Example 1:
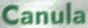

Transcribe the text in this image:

Canula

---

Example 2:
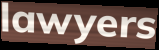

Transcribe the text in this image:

lawyers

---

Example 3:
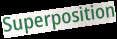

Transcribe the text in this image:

Superposition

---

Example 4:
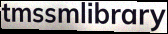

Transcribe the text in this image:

tmssmlibrary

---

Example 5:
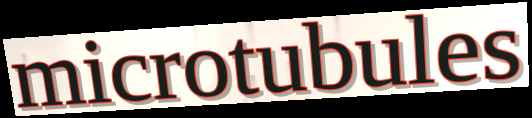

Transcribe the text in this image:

microtubules